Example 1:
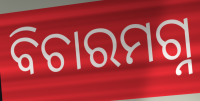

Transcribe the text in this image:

ବିଚାରମଗ୍ନ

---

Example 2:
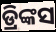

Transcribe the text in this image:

ଡ୍ରିଙ୍କସ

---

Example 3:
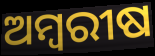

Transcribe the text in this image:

ଅମ୍ବରୀଷ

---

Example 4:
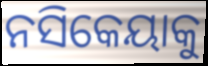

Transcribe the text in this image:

ନସିକେୟାକୁ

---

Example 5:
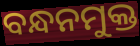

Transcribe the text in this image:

ବନ୍ଧନମୁକ୍ତ